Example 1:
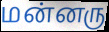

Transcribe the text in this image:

மன்னரு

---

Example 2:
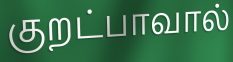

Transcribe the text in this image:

குறட்பாவால்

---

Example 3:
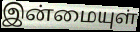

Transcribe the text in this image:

இன்மையுள்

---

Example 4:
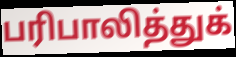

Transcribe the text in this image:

பரிபாலித்துக்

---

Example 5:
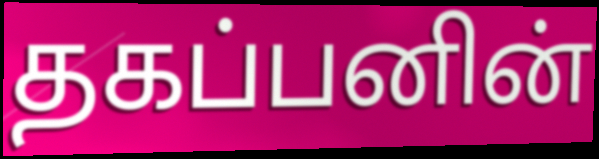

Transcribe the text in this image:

தகப்பனின்